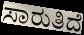
ಸಾರುತಿದೆ